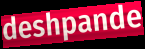
deshpande